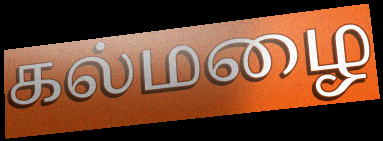
கல்மழை